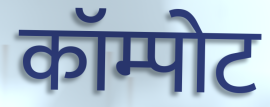
कॉम्पोट